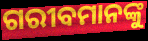
ଗରୀବମାନଙ୍କୁ